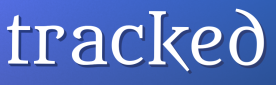
tracked